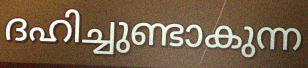
ദഹിച്ചുണ്ടാകുന്ന